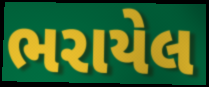
ભરાયેલ